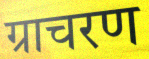
ग्राचरण